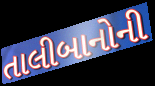
તાલીબાનોની